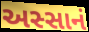
અસ્સાનં